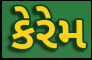
કેરેમ